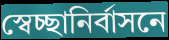
স্বেচ্ছানির্বাসনে